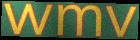
wmv